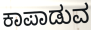
ಕಾಪಾಡುವ